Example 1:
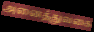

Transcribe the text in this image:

அனைத்துவகை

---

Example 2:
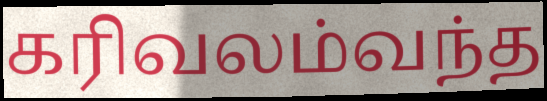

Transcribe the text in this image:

கரிவலம்வந்த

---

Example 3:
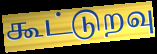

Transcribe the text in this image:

கூட்டுறவு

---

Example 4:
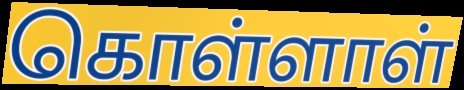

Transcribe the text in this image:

கொள்ளாள்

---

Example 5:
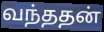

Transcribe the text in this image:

வந்ததன்